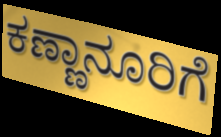
ಕಣ್ಣಾನೂರಿಗೆ